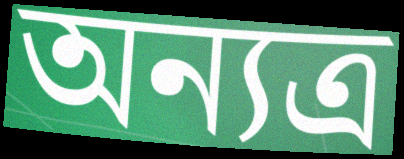
অন্যত্ৰ